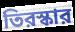
তিরস্কার